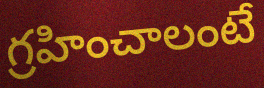
గ్రహించాలంటే